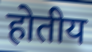
होतीय